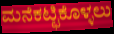
ಮನೆಕಟ್ಟಿಕೊಳ್ಳಲು